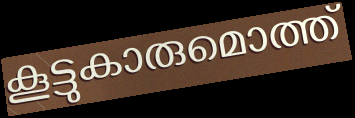
കൂട്ടുകാരുമൊത്ത്